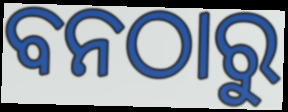
ବନଠାରୁ